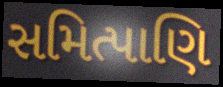
સમિત્પાણિ